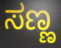
ಸಣ್ಣ